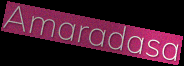
Amaradasa